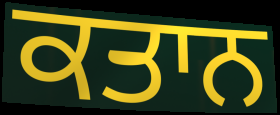
ਕਤਾਨ